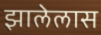
झालेलास